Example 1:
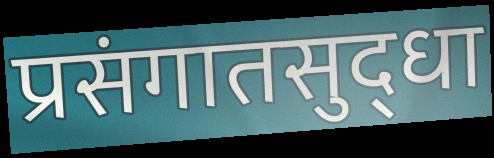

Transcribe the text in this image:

प्रसंगातसुद्धा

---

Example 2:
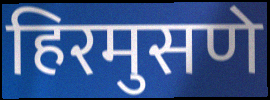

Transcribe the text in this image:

हिरमुसणे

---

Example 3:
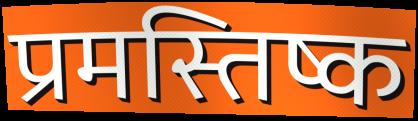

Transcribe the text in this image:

प्रमस्तिष्क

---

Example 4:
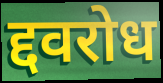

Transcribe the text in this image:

द्दवरोध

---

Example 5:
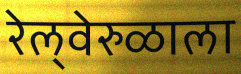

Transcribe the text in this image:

रेल्वेरुळाला